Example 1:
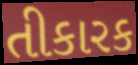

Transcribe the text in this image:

તીકારક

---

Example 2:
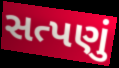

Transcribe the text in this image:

સત્પણું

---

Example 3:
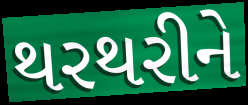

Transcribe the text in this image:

થરથરીને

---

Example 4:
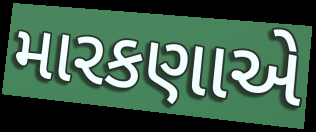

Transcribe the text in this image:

મારકણાએ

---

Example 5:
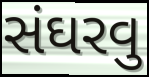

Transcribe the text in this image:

સંઘરવુ